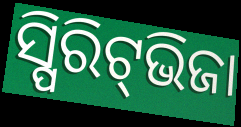
ସ୍ପିରିଟ୍‌ଭିଜା